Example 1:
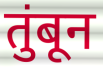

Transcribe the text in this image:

तुंबून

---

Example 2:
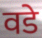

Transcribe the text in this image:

वडे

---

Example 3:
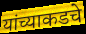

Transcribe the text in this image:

यांच्याकडचे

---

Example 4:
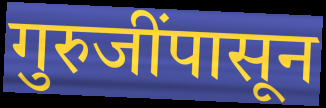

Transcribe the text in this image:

गुरुजींपासून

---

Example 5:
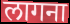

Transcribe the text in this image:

लागना